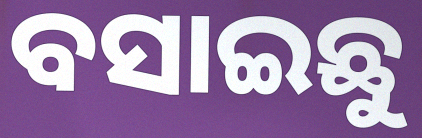
ବସାଇଛୁ